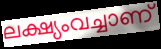
ലക്ഷ്യംവച്ചാണ്